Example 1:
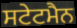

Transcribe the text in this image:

ਸਟੇਟਮੈਨ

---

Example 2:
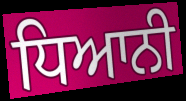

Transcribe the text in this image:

ਧਿਆਨੀ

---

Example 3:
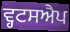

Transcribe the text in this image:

ਵ੍ਹਟਸਐਪ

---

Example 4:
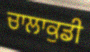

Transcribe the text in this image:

ਚਾਲਾਕੁਡੀ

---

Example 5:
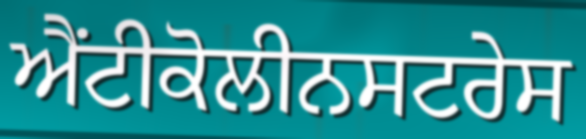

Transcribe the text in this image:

ਐਂਟੀਕੋਲੀਨਸਟਰੇਸ